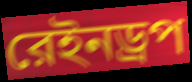
রেইনড্রপ